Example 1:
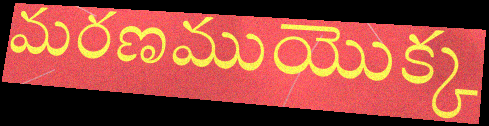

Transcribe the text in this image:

మరణముయొక్క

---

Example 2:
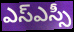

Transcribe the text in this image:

ఎస్ఎస్సీ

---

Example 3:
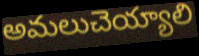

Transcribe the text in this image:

అమలుచెయ్యాలి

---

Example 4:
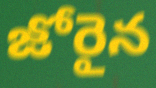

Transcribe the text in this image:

జోరైన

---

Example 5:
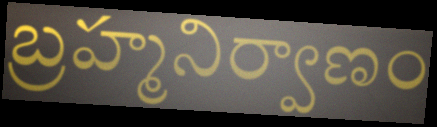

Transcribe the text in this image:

బ్రహ్మనిర్వాణం